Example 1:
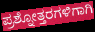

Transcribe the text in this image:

ಪ್ರಶ್ನೋತ್ತರಗಳಿಗಾಗಿ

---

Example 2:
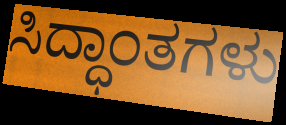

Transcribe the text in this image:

ಸಿದ್ಧಾಂತಗಳು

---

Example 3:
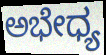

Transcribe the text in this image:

ಅಭೇಧ್ಯ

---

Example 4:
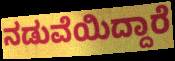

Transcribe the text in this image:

ನಡುವೆಯಿದ್ದಾರೆ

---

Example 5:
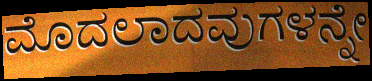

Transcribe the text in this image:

ಮೊದಲಾದವುಗಳನ್ನೇ